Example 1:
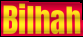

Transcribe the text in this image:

Bilhah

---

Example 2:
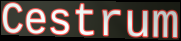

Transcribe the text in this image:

Cestrum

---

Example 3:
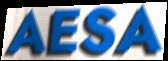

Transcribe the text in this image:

AESA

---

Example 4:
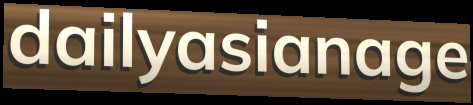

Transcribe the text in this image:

dailyasianage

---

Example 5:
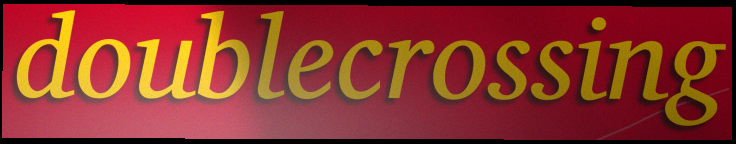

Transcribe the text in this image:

doublecrossing